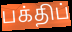
பக்திப்